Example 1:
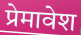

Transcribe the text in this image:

प्रेमावेश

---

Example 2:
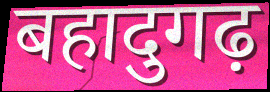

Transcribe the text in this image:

बहादुगढ़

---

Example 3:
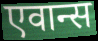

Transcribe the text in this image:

एवान्स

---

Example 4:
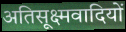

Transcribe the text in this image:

अतिसूक्ष्मवादियों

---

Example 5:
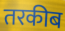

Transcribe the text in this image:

तरकीब